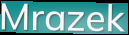
Mrazek